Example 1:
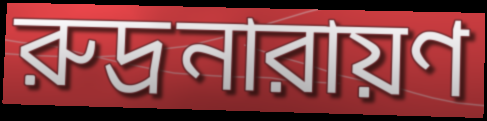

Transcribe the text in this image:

রুদ্রনারায়ণ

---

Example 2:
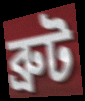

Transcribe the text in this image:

ব্রুট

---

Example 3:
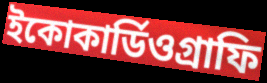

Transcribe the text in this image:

ইকোকার্ডিওগ্রাফি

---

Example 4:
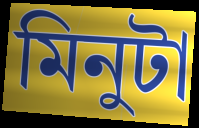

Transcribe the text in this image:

মিনুটা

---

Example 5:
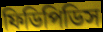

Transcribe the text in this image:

ফিডিপিডিস